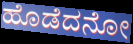
ಹೊಡೆದನೋ